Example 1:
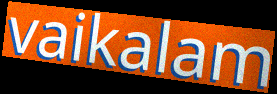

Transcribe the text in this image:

vaikalam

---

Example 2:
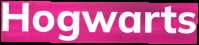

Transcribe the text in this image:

Hogwarts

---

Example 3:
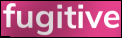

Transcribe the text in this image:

fugitive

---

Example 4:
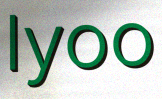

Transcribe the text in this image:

lyoo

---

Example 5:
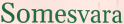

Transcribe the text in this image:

Somesvara